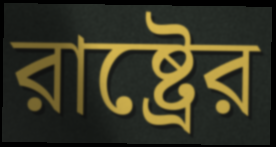
রাষ্ট্রের